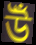
উঁ